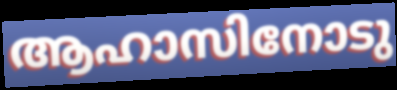
ആഹാസിനോടു